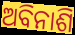
ଅବିନାଶି